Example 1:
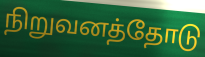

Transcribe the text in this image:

நிறுவனத்தோடு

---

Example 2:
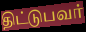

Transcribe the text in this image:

திட்டுபவர்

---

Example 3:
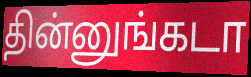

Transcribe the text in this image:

தின்னுங்கடா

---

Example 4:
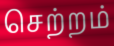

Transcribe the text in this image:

செற்றம்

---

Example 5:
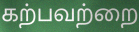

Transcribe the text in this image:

கற்பவற்றை